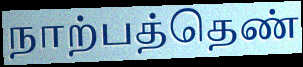
நாற்பத்தெண்